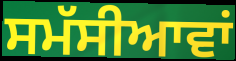
ਸਮੱਸੀਆਵਾਂ